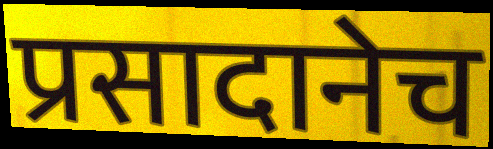
प्रसादानेच